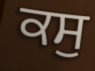
ਕਸੁ